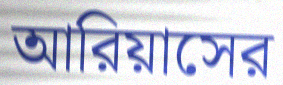
আরিয়াসের